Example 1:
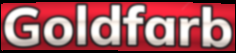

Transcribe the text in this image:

Goldfarb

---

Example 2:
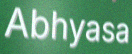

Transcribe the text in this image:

Abhyasa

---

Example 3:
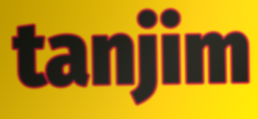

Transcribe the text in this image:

tanjim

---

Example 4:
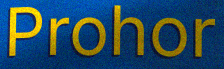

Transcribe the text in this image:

Prohor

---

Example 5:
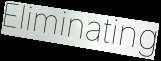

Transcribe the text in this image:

Eliminating